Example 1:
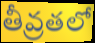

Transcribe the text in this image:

తీవ్రతలో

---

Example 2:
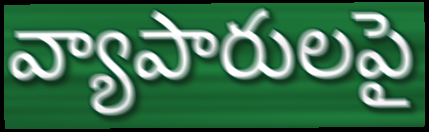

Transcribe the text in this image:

వ్యాపారులపై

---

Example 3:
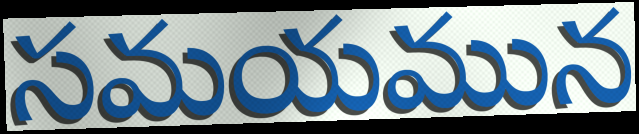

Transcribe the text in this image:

సమయమున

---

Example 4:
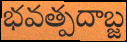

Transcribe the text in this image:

భవత్పదాబ్జ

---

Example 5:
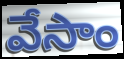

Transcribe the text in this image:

వేసాం